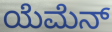
ಯೆಮೆನ್